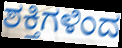
ಶಕ್ತಿಗಳಿಂದ